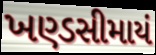
ખણ્ડસીમાયં